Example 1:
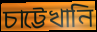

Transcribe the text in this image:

চাট্টেখানি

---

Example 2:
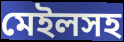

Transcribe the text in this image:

মেইলসহ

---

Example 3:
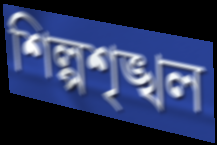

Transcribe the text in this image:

শিল্পশৃঙ্খল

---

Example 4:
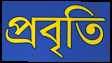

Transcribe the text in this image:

প্রবৃতি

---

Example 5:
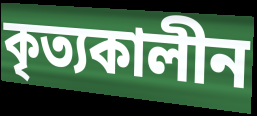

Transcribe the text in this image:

কৃত্যকালীন